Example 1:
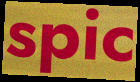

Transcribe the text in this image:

spic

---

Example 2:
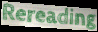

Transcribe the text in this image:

Rereading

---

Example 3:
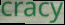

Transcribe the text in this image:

cracy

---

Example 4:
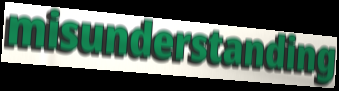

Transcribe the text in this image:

misunderstanding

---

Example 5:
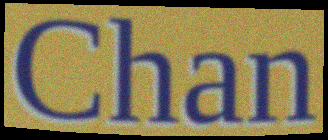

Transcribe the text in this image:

Chan